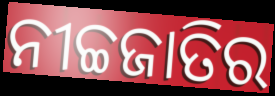
ନୀଚ୍ଚଜାତିର